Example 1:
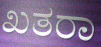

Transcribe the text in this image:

ಖತರಾ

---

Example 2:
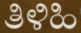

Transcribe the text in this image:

ತಿಳಿಹಿ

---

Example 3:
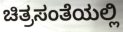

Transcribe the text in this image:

ಚಿತ್ರಸಂತೆಯಲ್ಲಿ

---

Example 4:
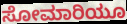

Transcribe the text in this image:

ಸೋಮಾರಿಯೂ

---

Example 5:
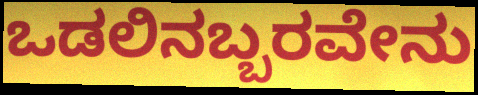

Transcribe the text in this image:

ಒಡಲಿನಬ್ಬರವೇನು